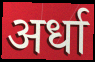
अर्धा